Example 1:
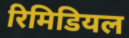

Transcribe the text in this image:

रिमिडियल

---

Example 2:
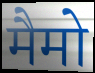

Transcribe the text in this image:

मैमो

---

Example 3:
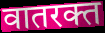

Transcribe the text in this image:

वातरक्त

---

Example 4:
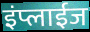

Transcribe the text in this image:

इंप्लाईज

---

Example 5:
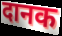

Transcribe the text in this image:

दानक